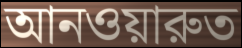
আনওয়ারুত